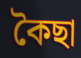
কৈছা